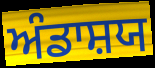
ਅੰਡਾਸ਼ਯ